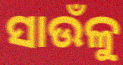
ସାଉଁଳୁ